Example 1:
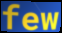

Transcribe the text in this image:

few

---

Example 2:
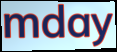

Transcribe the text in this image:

mday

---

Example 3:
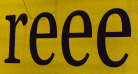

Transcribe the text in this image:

reee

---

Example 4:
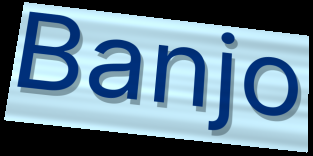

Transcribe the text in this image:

Banjo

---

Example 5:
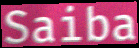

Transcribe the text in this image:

Saiba